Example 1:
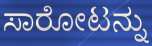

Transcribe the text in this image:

ಸಾರೋಟನ್ನು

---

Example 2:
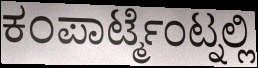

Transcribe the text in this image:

ಕಂಪಾರ್ಟ್ಮೆಂಟ್ನಲ್ಲಿ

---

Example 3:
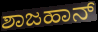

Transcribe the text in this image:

ಶಾಜಹಾನ್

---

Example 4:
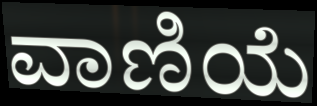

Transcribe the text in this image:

ವಾಣಿಯೆ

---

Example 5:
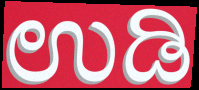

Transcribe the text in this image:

ಉಡಿ